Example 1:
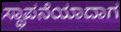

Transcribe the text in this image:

ಸ್ಥಾಪನೆಯಾದಾಗ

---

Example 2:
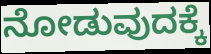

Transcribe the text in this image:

ನೋಡುವುದಕ್ಕೆ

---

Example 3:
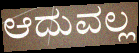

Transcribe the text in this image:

ಆದುವಲ್ಲ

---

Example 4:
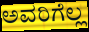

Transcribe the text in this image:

ಅವರಿಗೆಲ್ಲ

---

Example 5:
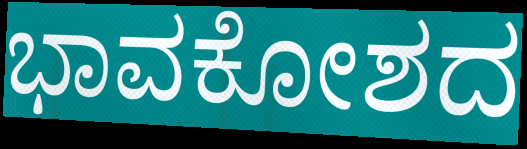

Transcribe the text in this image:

ಭಾವಕೋಶದ